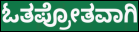
ಓತಪ್ರೋತವಾಗಿ